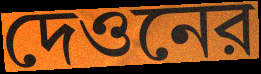
দেওনের